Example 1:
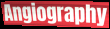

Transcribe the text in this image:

Angiography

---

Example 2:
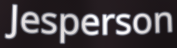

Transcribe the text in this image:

Jesperson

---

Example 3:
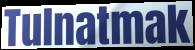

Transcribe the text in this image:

Tulnatmak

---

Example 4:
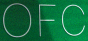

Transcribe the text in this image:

OFC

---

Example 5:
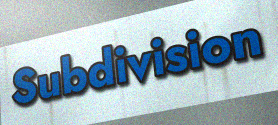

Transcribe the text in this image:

Subdivision